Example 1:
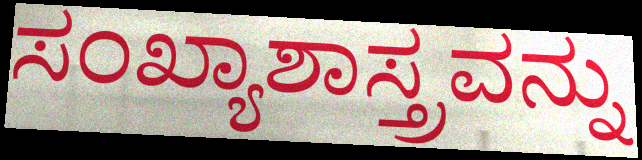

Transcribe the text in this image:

ಸಂಖ್ಯಾಶಾಸ್ತ್ರವನ್ನು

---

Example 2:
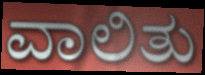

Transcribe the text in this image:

ವಾಲಿತು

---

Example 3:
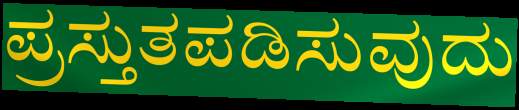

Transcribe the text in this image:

ಪ್ರಸ್ತುತಪಡಿಸುವುದು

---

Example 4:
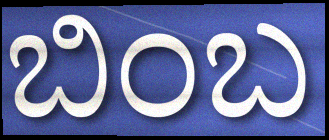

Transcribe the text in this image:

ಬಿಂಬ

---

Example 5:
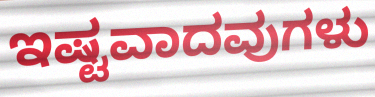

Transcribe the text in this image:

ಇಷ್ಟವಾದವುಗಳು